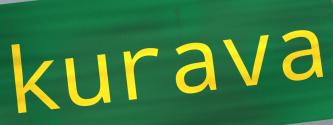
kurava